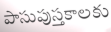
పాసుపుస్తకాలకు